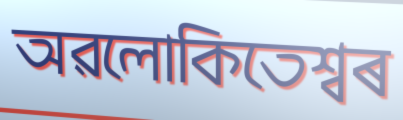
অৱলোকিতেশ্বৰ